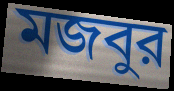
মজবুর